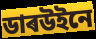
ডাৰউইনে